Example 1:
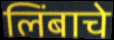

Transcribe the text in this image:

लिंबाचे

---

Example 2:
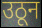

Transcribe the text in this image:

उठून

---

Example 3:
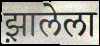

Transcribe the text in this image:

झ़ालेला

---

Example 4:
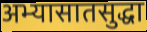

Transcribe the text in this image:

अभ्यासातसुद्धा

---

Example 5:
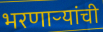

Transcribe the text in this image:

भरणाऱ्यांची